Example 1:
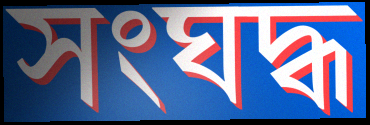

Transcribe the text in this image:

সংঘদ্ধ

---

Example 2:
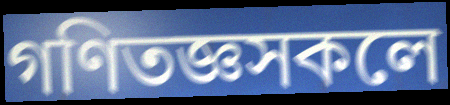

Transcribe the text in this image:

গণিতজ্ঞসকলে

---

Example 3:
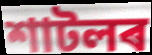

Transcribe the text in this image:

শাটলৰ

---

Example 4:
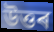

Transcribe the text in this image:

উত্তৰ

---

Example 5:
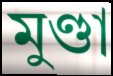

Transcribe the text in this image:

মুণ্ডা